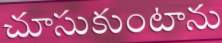
చూసుకుంటాను